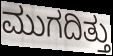
ಮುಗದಿತ್ತು